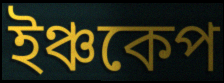
ইঞ্চকেপ